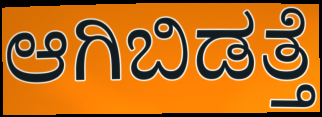
ಆಗಿಬಿಡತ್ತೆ